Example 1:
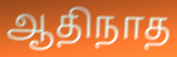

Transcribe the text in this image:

ஆதிநாத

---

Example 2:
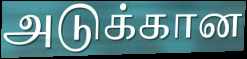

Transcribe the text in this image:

அடுக்கான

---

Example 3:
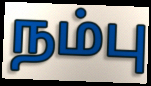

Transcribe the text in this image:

நம்பு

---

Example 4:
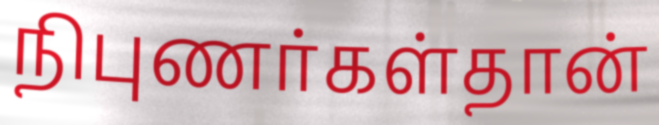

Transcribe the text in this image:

நிபுணர்கள்தான்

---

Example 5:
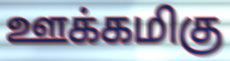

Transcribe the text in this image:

ஊக்கமிகு